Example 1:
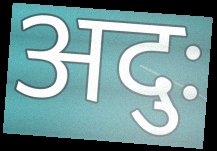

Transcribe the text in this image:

अदुः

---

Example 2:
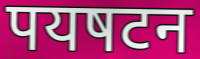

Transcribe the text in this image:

पयषटन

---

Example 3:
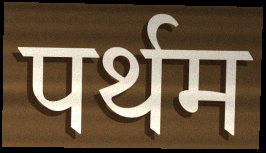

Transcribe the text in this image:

पर्थम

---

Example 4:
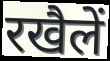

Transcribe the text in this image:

रखैलें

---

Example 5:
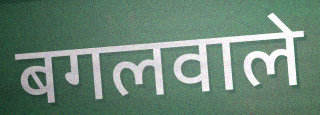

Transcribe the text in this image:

बगलवाले